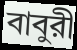
বাবুরী